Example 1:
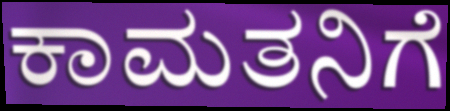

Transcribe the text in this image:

ಕಾಮತನಿಗೆ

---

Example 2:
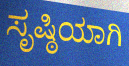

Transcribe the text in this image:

ಸೃಷ್ಠಿಯಾಗಿ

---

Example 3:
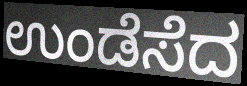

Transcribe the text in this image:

ಉಂಡೆಸೆದ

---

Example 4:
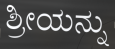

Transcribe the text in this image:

ಶ್ರೀಯನ್ನು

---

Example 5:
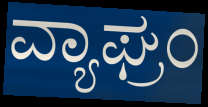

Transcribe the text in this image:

ವ್ಯಾಘ್ರಂ